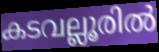
കടവല്ലൂരിൽ